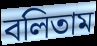
বলিতাম